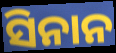
ସିନାନ